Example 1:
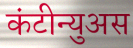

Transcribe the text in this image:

कंटीन्युअस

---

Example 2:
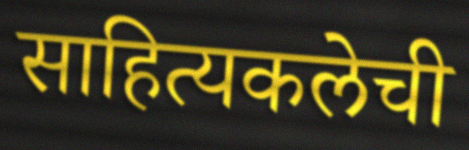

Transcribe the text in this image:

साहित्यकलेची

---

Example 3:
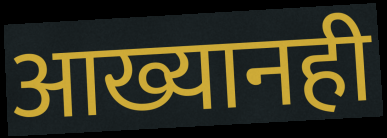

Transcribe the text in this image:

आख्यानही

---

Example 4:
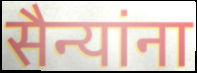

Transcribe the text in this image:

सैन्यांना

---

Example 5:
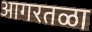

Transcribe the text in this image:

आगरतळा